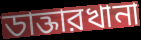
ডাক্তারখানা